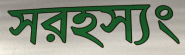
সরহস্যং